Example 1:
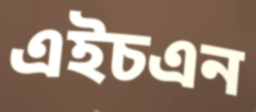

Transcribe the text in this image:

এইচএন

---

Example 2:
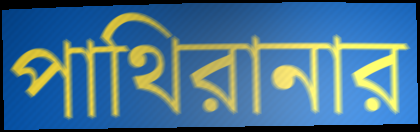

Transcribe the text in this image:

পাথিরানার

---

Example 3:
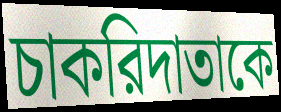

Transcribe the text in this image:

চাকরিদাতাকে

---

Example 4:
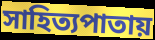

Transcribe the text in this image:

সাহিত্যপাতায়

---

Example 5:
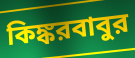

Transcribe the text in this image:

কিঙ্করবাবুর